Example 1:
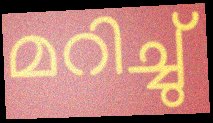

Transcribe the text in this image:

മറിച്ചു്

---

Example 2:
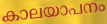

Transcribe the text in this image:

കാലയാപനം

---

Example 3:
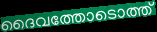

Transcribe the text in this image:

ദൈവത്തോടൊത്ത്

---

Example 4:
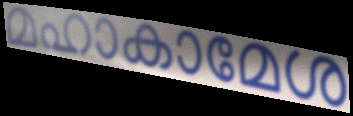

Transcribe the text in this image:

മഹാകാമേശ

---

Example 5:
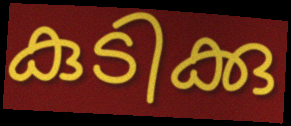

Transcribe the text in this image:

കുടിക്കു